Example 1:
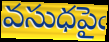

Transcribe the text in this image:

వసుధపైఁ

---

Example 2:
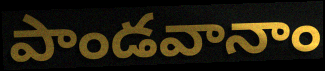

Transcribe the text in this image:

పాండవానాం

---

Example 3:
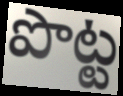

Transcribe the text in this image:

పొట్ట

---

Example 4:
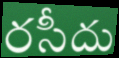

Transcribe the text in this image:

రసీదు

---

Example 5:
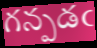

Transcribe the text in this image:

గన్పడఁ